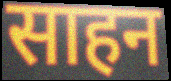
साहन